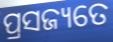
ପ୍ରସଜ୍ୟତେ